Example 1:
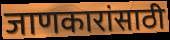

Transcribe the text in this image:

जाणकारांसाठी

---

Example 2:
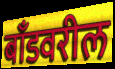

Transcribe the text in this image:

बॉंडवरील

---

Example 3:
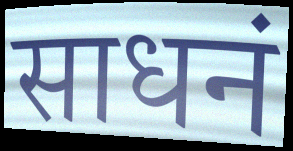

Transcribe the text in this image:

साधनं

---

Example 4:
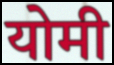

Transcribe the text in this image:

योमी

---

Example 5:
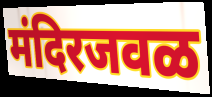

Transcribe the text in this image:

मंदिरजवळ